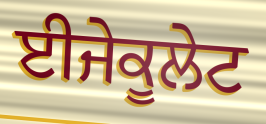
ਈਜੇਕੂਲੇਟ